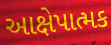
આક્ષેપાત્મક